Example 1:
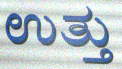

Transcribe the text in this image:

ಉತ್ತು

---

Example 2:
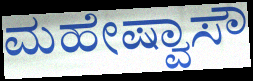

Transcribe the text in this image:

ಮಹೇಷ್ವಾಸೌ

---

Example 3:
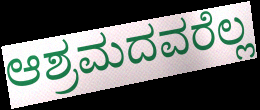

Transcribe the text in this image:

ಆಶ್ರಮದವರೆಲ್ಲ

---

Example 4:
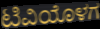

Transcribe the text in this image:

ಟಿವಿಯೊಳಗ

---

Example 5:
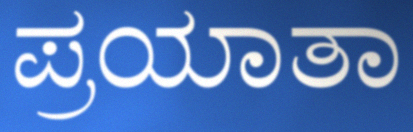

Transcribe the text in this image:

ಪ್ರಯಾತಾ